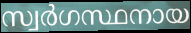
സ്വർഗസ്ഥനായ